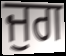
ਜੁਗ